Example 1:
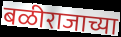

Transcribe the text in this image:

बळीराजाच्या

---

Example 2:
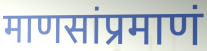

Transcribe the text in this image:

माणसांप्रमाणं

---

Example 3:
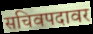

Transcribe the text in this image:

सचिवपदावर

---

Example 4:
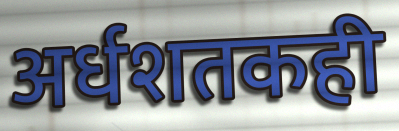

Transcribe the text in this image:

अर्धशतकही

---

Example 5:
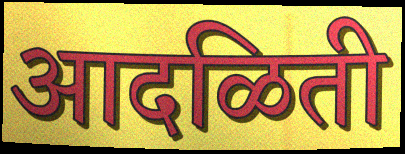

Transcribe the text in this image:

आदळिती